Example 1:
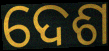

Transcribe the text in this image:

ଦେଶ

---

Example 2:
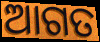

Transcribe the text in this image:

ଆଗତ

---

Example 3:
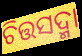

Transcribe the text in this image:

ଚିତ୍ତସଦ୍ମା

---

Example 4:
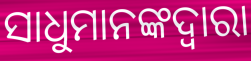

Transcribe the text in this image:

ସାଧୁମାନଙ୍କଦ୍ଵାରା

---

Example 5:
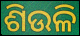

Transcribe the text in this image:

ଶିଉଳି